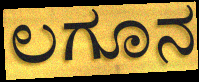
ಲಗೂನ